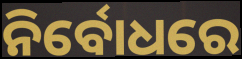
ନିର୍ବୋଧରେ